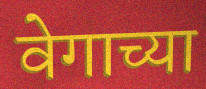
वेगाच्या